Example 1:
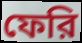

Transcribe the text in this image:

ফেরি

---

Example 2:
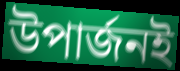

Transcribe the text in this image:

উপার্জনই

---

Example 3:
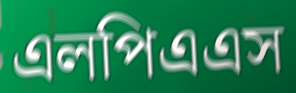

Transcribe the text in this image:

এলপিএএস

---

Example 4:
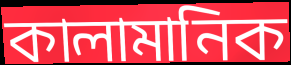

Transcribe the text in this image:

কালামানিক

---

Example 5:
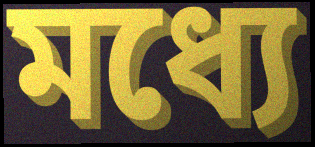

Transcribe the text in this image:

মধ্যে